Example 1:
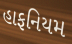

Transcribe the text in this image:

હાફનિયમ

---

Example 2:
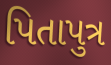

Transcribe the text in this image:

પિતાપુત્ર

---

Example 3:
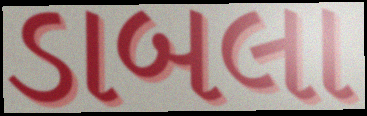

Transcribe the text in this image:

ડાબલા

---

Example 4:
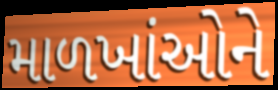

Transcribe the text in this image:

માળખાંઓને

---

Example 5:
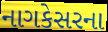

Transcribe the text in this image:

નાગકેસરના